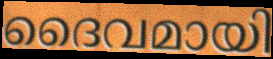
ദൈവമായി